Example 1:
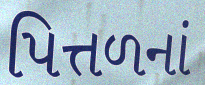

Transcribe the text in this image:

પિત્તળનાં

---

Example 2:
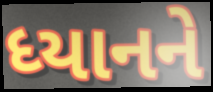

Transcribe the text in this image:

ધ્યાનને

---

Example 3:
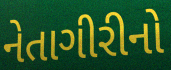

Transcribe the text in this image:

નેતાગીરીનો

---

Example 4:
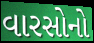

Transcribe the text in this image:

વારસોનો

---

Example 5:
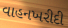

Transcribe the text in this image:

વાહનખરીદી